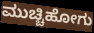
ಮುಚ್ಚಿಹೋಗು